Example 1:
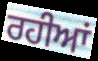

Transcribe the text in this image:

ਰਹੀਆਂ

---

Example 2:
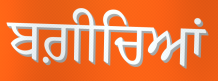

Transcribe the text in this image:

ਬਗ਼ੀਚਿਆਂ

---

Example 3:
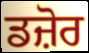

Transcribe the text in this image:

ਡਜ਼ੋਰ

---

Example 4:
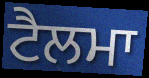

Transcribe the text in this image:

ਟੈਲਮਾ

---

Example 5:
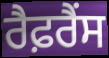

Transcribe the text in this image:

ਰੈਫ਼ਰੈਂਸ